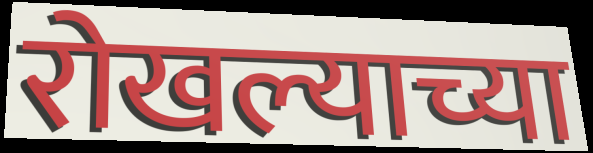
रोखल्याच्या